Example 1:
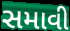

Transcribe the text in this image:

સમાવી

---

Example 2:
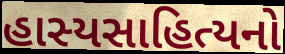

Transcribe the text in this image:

હાસ્યસાહિત્યનો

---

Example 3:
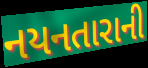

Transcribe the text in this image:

નયનતારાની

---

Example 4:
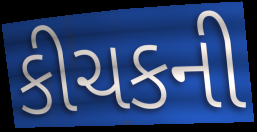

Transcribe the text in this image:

કીચકની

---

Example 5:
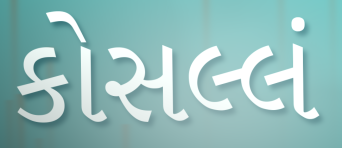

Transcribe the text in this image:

કોસલ્લં